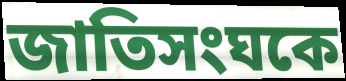
জাতিসংঘকে